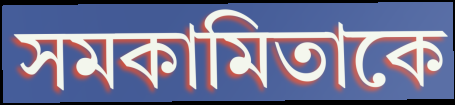
সমকামিতাকে